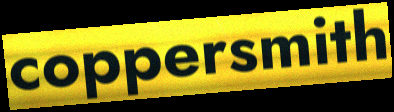
coppersmith